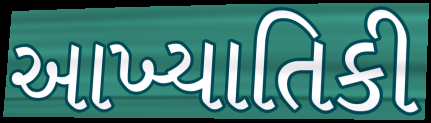
આખ્યાતિકી